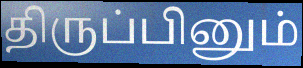
திருப்பினும்